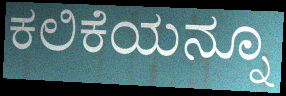
ಕಲಿಕೆಯನ್ನೂ